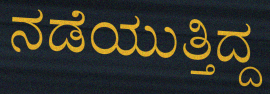
ನಡೆಯುತ್ತಿದ್ದ